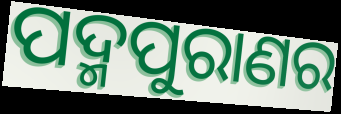
ପଦ୍ମପୁରାଣର